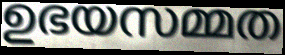
ഉഭയസമ്മത